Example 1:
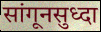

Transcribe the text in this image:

सांगूनसुध्दा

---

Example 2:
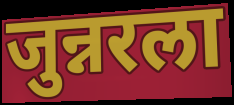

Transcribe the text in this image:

जुन्नरला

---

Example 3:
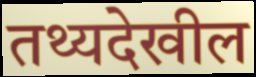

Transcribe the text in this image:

तथ्यदेखील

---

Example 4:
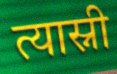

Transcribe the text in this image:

त्यास्नी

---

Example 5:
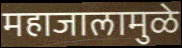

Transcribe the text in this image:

महाजालामुळे